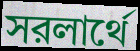
সরলার্থে